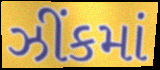
ઝીંકમાં